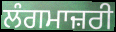
ਲੰਗਮਾਜ਼ਰੀ